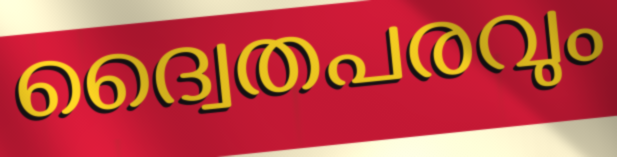
ദ്വൈതപരവും